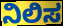
ನಿಲಿಸ